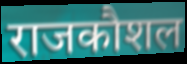
राजकौशल